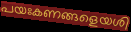
പയഃകണങ്ങളെയശി